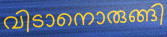
വിടാനൊരുങ്ങി